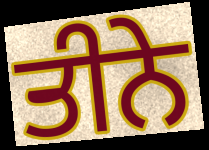
ਤੀਨੇ